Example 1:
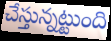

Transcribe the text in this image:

చేస్తున్నట్టుంది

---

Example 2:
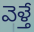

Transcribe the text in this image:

వెళ్తే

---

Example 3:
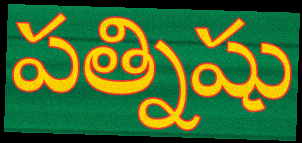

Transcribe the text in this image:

పత్నిషు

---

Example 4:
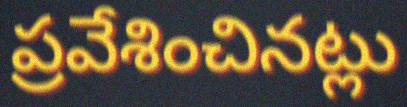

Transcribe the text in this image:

ప్రవేశించినట్లు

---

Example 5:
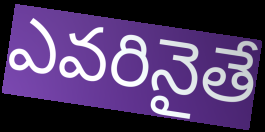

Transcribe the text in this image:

ఎవరినైతే